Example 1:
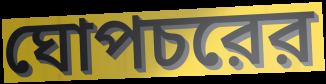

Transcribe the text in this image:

ঘোপচরের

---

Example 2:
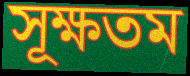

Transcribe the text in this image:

সূক্ষতম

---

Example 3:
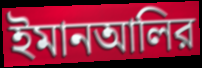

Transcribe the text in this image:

ইমানআলির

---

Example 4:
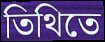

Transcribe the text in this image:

তিথিতে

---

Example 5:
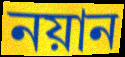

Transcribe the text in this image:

নয়ান